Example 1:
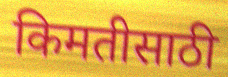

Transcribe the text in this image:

किमतीसाठी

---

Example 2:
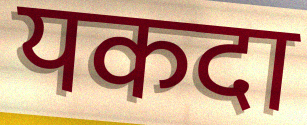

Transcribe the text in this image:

यकदा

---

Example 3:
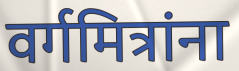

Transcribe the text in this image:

वर्गमित्रांना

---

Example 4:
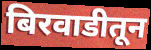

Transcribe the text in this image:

बिरवाडीतून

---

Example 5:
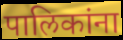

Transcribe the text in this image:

पालिकांना